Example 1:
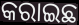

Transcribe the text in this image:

କରାଇଛ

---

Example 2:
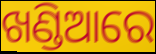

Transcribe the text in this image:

ଖଣ୍ଡିଆରେ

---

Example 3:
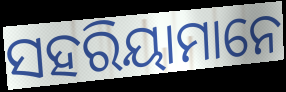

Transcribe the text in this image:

ସହରିୟାମାନେ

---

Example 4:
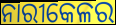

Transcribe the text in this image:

ନାରୀକେଳର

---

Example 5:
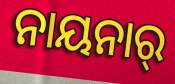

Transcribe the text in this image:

ନାୟନାର୍